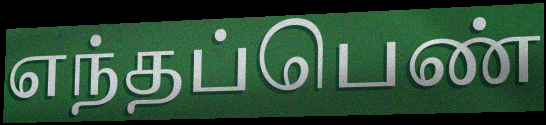
எந்தப்பெண்